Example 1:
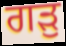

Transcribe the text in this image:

ਗੜੁ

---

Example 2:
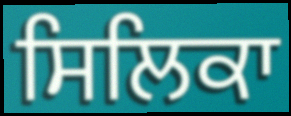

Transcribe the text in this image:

ਸਿਲਿਕਾ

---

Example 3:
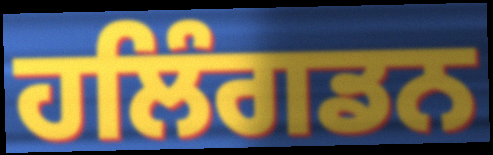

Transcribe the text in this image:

ਹਲਿੰਗਡਨ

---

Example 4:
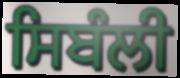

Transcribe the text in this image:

ਸਿਬੰਲੀ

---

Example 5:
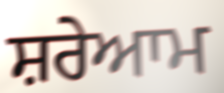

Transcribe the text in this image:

ਸ਼ਰੇਆਮ